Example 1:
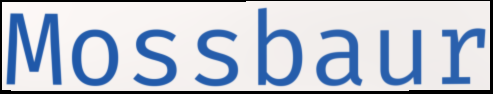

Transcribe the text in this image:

Mossbaur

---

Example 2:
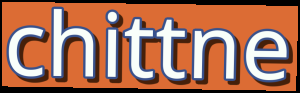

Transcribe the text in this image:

chittne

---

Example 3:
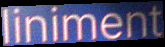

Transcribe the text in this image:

liniment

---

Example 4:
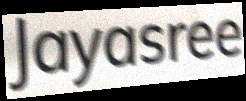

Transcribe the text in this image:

Jayasree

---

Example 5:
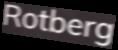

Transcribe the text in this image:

Rotberg